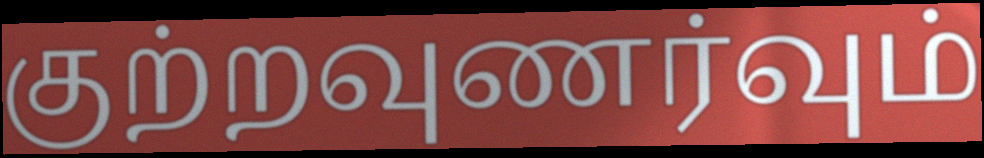
குற்றவுணர்வும்